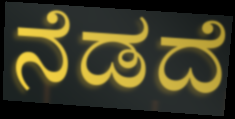
ನೆಡದೆ